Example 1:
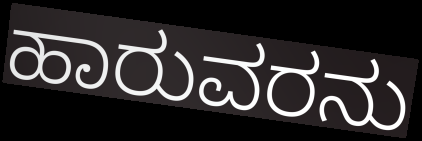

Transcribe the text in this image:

ಹಾರುವರನು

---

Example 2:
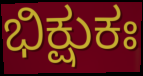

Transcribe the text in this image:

ಭಿಕ್ಷುಕಃ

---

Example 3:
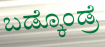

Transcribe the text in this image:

ಬಡ್ಕೊಂಡ್ರೆ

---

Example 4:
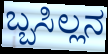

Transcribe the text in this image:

ಬ್ಬಸಿಲ್ಲನ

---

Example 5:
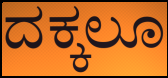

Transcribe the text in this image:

ದಕ್ಕಲೂ